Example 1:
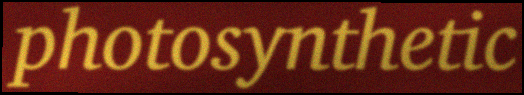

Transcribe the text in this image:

photosynthetic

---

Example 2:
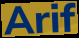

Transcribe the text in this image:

Arif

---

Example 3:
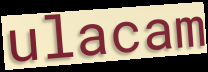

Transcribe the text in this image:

ulacam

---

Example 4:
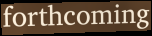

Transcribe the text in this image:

forthcoming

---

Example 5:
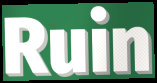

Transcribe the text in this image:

Ruin